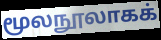
மூலநூலாகக்